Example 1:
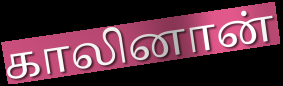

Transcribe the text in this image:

காலினான்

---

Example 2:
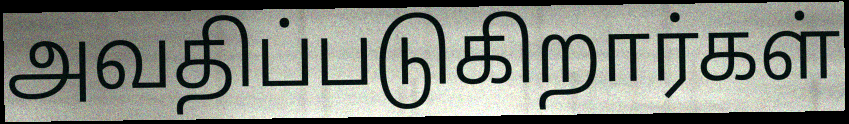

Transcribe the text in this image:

அவதிப்படுகிறார்கள்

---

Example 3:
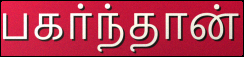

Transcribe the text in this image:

பகர்ந்தான்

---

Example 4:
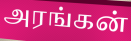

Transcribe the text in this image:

அரங்கன்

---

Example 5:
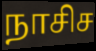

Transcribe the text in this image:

நாசிச